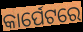
କାର୍ପେଟରେ